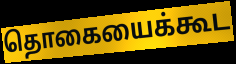
தொகையைக்கூட